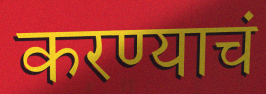
करण्याचं